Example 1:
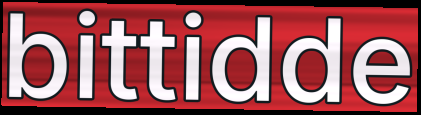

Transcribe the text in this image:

bittidde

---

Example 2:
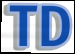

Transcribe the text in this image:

TD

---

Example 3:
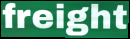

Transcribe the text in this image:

freight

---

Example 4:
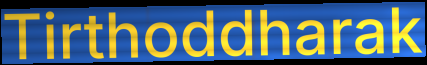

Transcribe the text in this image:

Tirthoddharak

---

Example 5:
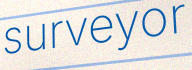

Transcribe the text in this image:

surveyor